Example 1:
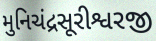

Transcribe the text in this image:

મુનિચંદ્રસૂરીશ્વરજી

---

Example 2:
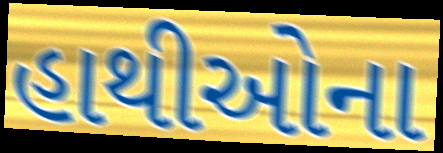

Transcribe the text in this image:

હાથીઓના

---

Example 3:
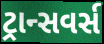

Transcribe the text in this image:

ટ્રાન્સવર્સ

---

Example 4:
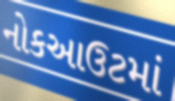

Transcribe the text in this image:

નોકઆઉટમાં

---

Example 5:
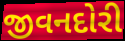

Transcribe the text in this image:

જીવનદોરી